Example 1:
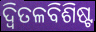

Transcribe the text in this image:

ଦ୍ୱିତଳବିଶିଷ୍ଟ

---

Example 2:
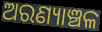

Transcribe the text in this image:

ଅରଣ୍ୟାଞ୍ଚଳ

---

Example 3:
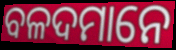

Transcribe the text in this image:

ବଳଦମାନେ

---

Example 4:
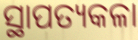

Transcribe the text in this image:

ସ୍ଥାପତ୍ୟକଳା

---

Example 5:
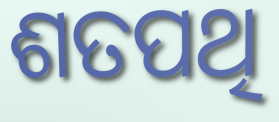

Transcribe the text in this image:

ଶତପଥି